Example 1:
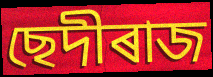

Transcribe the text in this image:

ছেদীৰাজ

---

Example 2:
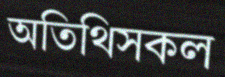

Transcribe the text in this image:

অতিথিসকল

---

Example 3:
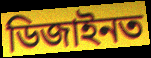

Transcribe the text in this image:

ডিজাইনত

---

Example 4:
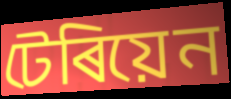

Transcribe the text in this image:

টেৰিয়েন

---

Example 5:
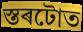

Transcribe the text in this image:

স্তৰটোত